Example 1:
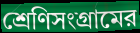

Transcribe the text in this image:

শ্রেণিসংগ্রামের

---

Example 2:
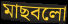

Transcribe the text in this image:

মাছবলো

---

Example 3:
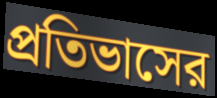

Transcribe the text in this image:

প্রতিভাসের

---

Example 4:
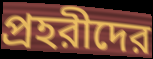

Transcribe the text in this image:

প্রহরীদের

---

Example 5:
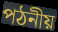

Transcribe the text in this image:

পঠনীয়